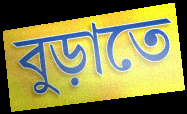
বুড়াতে